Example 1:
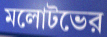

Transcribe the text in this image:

মলোটভের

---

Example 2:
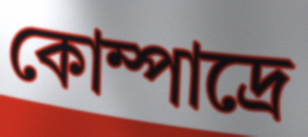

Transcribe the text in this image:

কোম্পাদ্রে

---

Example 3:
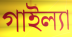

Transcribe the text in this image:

গাইল্যা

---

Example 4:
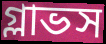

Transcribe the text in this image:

গ্লাভস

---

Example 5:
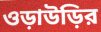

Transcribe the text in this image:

ওড়াউড়ির